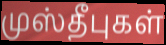
முஸ்தீபுகள்